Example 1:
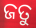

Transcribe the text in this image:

ଜତୁ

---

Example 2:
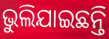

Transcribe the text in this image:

ଭୁଲିଯାଇଛନ୍ତି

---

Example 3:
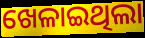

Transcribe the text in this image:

ଖେଳାଇଥିଲା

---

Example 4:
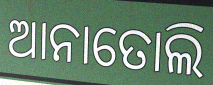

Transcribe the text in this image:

ଆନାତୋଲି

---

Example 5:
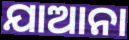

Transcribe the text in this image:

ଯାଆନା